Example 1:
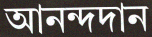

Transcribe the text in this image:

আনন্দদান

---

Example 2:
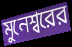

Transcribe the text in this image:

মুনেশ্বরের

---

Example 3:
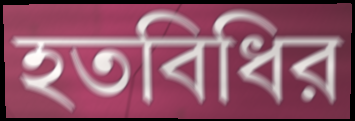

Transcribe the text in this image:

হতবিধির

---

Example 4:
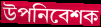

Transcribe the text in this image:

উপনিবেশক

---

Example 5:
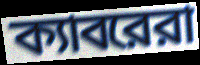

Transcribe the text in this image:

ক্যাবরেরা